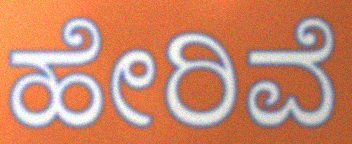
ಹೇರಿವೆ